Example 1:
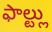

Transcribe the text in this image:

ఫాల్ట్లు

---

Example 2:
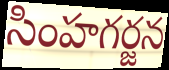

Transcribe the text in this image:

సింహగర్జన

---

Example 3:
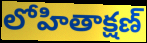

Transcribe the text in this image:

లోహితాక్షణ్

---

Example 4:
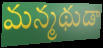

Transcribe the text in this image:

మన్మథుడా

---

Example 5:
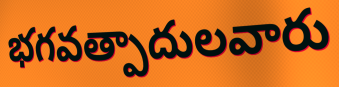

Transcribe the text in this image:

భగవత్పాదులవారు